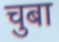
चुबा